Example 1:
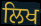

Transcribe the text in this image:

ਲਿਖ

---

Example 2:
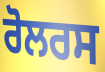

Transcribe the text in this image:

ਰੋਲਰਸ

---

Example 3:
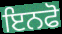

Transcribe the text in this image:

ਇਨਫੋ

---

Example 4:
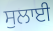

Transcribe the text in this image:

ਸੁਲਾਈ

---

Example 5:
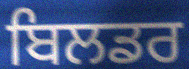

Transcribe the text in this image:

ਬਿਲਡਰ